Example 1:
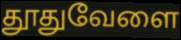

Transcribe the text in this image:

தூதுவேளை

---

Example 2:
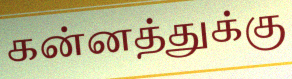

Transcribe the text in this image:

கன்னத்துக்கு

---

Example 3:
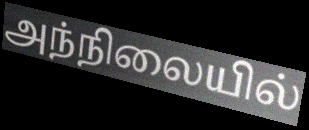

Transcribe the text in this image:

அந்நிலையில்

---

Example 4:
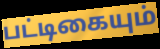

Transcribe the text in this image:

பட்டிகையும்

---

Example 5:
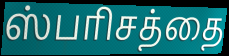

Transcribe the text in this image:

ஸ்பரிசத்தை